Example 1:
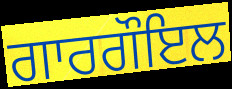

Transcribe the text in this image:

ਗਾਰਗੌਇਲ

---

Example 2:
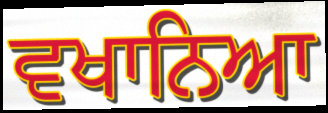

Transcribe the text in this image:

ਵਖਾਨਿਆ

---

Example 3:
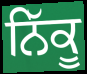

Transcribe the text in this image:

ਨਿੱਕੂ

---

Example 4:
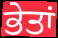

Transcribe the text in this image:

ਭੇਤਾਂ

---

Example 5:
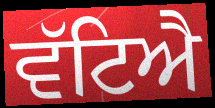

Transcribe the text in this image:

ਵੱਟਿਐ